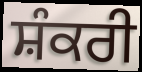
ਸ਼ੰਕਰੀ